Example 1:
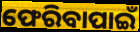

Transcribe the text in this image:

ଫେରିବାପାଇଁ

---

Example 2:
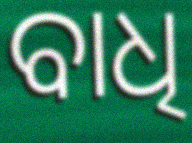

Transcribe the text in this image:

ବାଧି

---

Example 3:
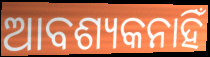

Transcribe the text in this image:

ଆବଶ୍ୟକନାହିଁ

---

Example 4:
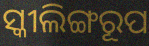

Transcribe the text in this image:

ସ୍କୀଲିଙ୍ଗରୂପ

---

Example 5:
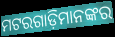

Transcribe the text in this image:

ମଟରଗାଡ଼ିମାନଙ୍କର